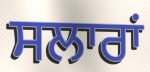
ਸਲਾਰਾਂ